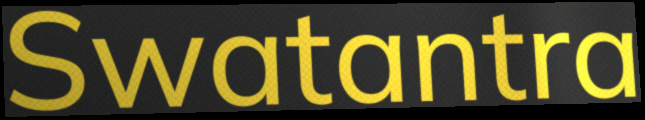
Swatantra